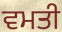
ਵਮਤੀ